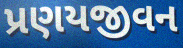
પ્રણયજીવન